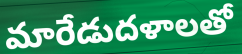
మారేడుదళాలతో